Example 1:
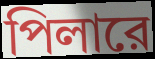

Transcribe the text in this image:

পিলারে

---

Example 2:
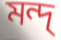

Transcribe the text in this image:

মন্দ্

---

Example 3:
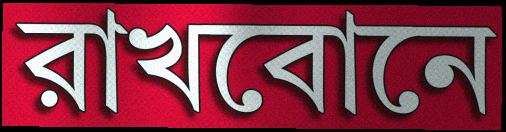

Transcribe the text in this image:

রাখবোনে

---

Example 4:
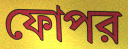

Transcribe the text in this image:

ফোপর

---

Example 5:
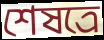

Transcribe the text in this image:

শেষত্রে